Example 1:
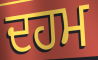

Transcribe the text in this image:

ਦਹਮ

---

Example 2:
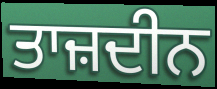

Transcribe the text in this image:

ਤਾਜ਼ਦੀਨ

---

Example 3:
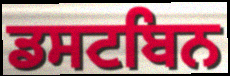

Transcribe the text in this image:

ਡਸਟਬਿਨ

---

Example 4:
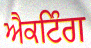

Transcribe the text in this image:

ਐਕਟਿੰਗ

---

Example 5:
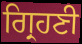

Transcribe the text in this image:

ਗ੍ਰਿਹਣੀ